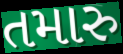
તમારુ